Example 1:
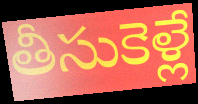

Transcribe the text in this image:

తీసుకెళ్లే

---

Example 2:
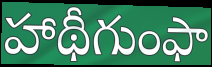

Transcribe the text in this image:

హాథీగుంఫా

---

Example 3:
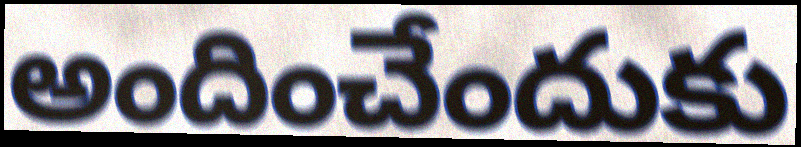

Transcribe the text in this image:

అందించేందుకు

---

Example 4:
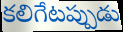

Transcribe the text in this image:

కలిగేటప్పుడు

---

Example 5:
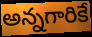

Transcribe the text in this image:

అన్నగారికే